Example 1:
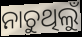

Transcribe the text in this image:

ନାଚୁଥିଲୁଁ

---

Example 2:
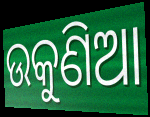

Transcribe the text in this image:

ଉକୁଣିଆ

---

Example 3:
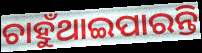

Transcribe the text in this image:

ଚାହୁଁଥାଇପାରନ୍ତି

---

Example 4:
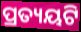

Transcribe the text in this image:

ପ୍ରତ୍ୟୟଟି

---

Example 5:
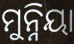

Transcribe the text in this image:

ମୁନ୍ନିୟା